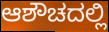
ಆಶೌಚದಲ್ಲಿ